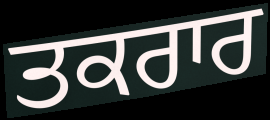
ਤਕਰਾਰ